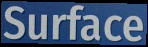
Surface